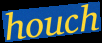
houch